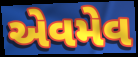
એવમેવ